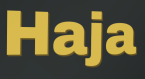
Haja